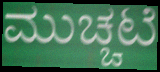
ಮುಚ್ಚಟೆ